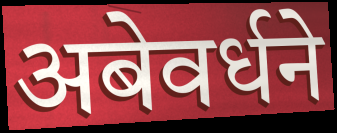
अबेवर्धने